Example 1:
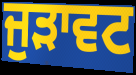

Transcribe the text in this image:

ਜੁੜਾਵਟ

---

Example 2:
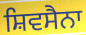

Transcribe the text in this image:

ਸ਼ਿਵਸੈਨਾ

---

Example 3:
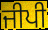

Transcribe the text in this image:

ਜੀਪੀ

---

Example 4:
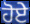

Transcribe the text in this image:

ਹੋਏੇ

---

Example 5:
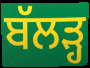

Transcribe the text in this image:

ਬੱਲੜ੍ਹ